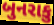
બુનરાકુ